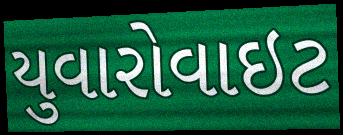
યુવારોવાઇટ